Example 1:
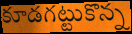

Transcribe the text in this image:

కూడగట్టుకొన్న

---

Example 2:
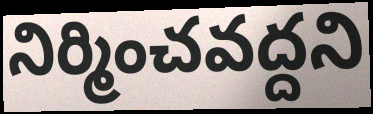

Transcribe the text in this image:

నిర్మించవద్దని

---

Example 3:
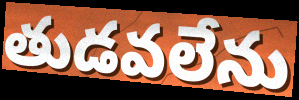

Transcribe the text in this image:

తుడవలేను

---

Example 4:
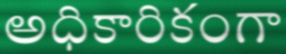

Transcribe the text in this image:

అధికారికంగా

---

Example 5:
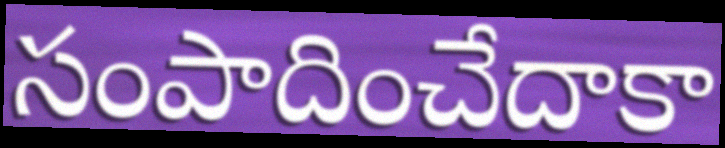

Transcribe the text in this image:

సంపాదించేదాకా